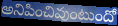
అనిపించివుంటుందో